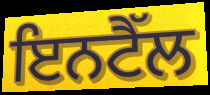
ਇਨਟੈੱਲ